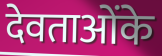
देवताओंके